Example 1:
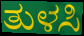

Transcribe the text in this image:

ತುಳಸಿ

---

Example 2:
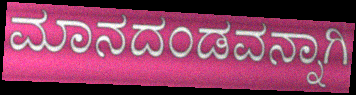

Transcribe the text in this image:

ಮಾನದಂಡವನ್ನಾಗಿ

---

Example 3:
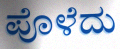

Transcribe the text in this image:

ಪೊಳೆದು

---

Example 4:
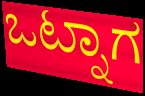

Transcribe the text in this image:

ಒಟ್ನಾಗ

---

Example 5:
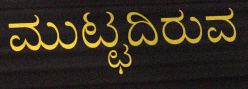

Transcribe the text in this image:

ಮುಟ್ಟದಿರುವ